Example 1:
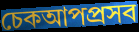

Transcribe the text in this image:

চেকআপপ্রসব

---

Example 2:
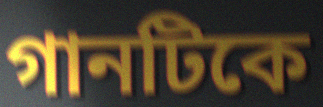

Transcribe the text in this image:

গানটিকে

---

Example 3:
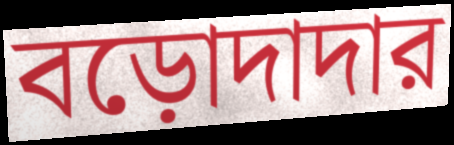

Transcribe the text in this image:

বড়োদাদার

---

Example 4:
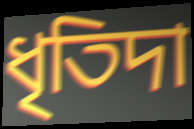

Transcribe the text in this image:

ধৃতিদা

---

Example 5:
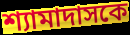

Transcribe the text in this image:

শ্যামাদাসকে